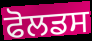
ਫੋਲਡਸ